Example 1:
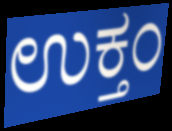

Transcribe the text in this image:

ಉಕ್ತಂ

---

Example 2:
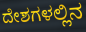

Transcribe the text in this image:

ದೇಶಗಳಲ್ಲಿನ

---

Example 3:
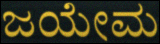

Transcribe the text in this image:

ಜಯೇಮ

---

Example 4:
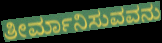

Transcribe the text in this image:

ತೀರ್ಮಾನಿಸುವವನು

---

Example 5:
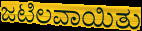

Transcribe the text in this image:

ಜಟಿಲವಾಯಿತು